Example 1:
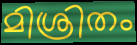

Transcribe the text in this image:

മിശ്രിതം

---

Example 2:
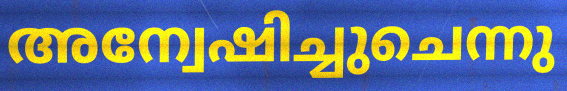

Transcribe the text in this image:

അന്വേഷിച്ചുചെന്നു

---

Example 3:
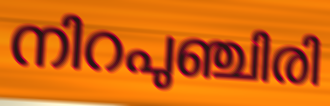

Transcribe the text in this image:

നിറപുഞ്ചിരി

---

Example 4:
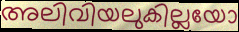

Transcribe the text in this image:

അലിവിയലുകില്ലയോ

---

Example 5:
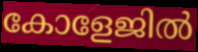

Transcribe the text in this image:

കോളേജിൽ